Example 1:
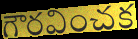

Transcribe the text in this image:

గౌరవించక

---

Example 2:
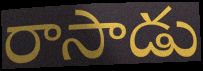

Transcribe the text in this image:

రాసాడు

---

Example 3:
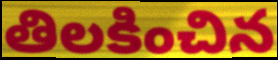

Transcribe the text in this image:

తిలకించిన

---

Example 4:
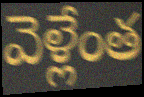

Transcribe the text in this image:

వెళ్లేంత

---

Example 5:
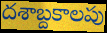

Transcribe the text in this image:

దశాబ్దకాలపు